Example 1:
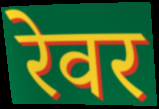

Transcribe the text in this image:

रेवर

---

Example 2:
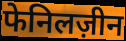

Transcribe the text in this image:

फेनिलज़ीन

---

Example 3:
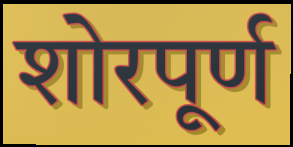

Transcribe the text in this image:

शोरपूर्ण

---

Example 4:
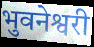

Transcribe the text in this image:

भुवनेश्वरी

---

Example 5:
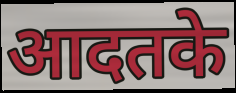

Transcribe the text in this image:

आदतके